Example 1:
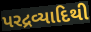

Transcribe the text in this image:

પરદ્રવ્યાદિથી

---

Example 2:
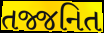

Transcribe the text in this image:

તજ્જનિત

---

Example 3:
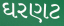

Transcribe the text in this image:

ઘરણટ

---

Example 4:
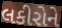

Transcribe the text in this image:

લકીરોને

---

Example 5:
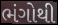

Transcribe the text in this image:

ભંગોથી